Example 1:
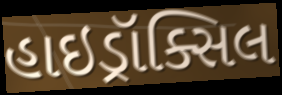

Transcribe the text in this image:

હાઇડ્રૉક્સિલ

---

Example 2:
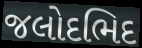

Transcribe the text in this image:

જલોદભિદ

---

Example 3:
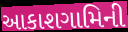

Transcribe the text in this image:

આકાશગામિની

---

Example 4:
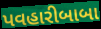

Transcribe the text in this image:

પવહારીબાબા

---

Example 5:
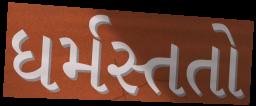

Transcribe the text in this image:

ધર્મસ્તતો